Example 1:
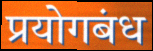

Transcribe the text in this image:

प्रयोगबंध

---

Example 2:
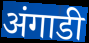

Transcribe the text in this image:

अंगाडी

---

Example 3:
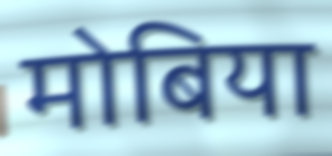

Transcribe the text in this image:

मोबिया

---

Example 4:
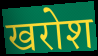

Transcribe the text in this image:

खरोश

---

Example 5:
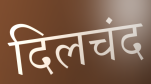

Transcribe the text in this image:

दिलचंद